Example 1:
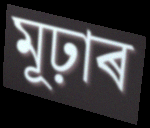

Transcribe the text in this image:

মূঢ়াৰ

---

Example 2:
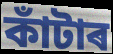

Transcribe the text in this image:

কাঁটাৰ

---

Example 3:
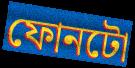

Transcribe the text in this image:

ফোনটো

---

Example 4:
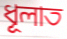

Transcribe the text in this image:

ধূলাত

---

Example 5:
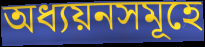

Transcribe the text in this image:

অধ্যয়নসমূহে